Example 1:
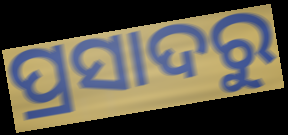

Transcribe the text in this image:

ପ୍ରସାଦରୁ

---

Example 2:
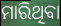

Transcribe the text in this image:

ମାରିଥିବା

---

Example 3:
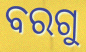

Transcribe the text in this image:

ବରଗୁ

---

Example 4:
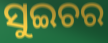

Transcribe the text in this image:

ସୁଇଚର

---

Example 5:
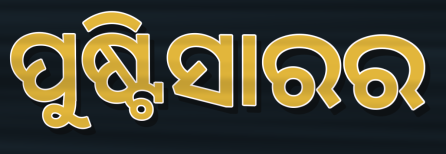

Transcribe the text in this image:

ପୁଷ୍ଟିସାରର